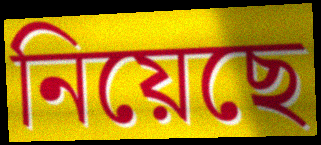
নিয়েছে